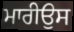
ਮਾਰੀਉਸ